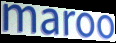
maroo